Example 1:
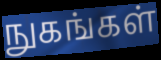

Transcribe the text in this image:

நுகங்கள்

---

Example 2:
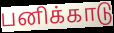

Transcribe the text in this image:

பனிக்காடு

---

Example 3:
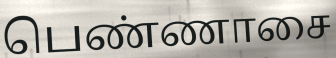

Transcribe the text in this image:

பெண்ணாசை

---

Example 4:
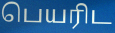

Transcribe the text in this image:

பெயரிட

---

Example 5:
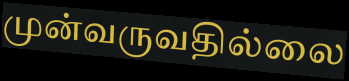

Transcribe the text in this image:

முன்வருவதில்லை